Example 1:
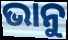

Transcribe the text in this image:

ଭାନୁ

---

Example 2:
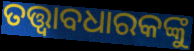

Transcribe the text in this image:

ତତ୍ତ୍ଵାବଧାରକଙ୍କୁ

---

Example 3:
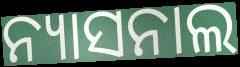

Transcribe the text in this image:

ନ୍ୟାସନାଲ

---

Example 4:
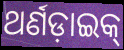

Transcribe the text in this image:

ଥର୍ଣଡ଼ାଇକ୍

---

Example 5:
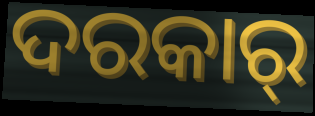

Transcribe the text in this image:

ଦରକାର୍